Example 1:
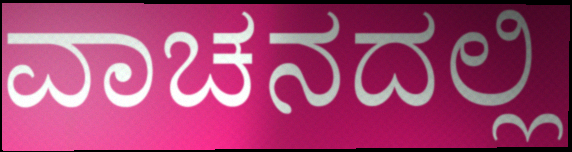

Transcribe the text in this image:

ವಾಚನದಲ್ಲಿ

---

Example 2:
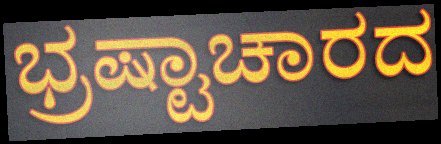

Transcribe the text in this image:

ಭ್ರಷ್ಟಾಚಾರದ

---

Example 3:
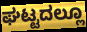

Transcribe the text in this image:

ಘಟ್ಟದಲ್ಲೂ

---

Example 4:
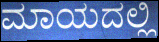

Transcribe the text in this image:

ಮಾಯದಲ್ಲಿ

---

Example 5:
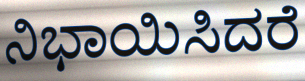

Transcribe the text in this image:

ನಿಭಾಯಿಸಿದರೆ